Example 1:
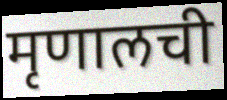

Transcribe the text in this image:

मृणालची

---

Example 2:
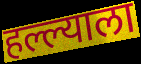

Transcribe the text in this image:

हल्ल्याला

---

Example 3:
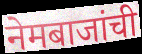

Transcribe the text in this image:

नेमबाजांची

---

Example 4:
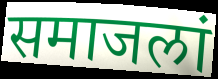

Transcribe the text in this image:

समाजलां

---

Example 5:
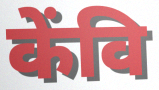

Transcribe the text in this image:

केंवि